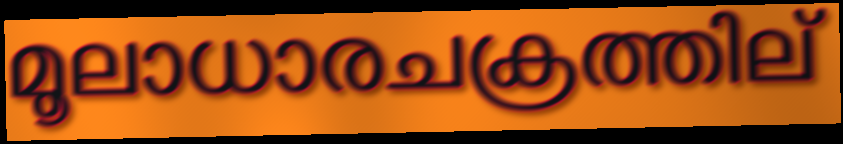
മൂലാധാരചക്രത്തില്